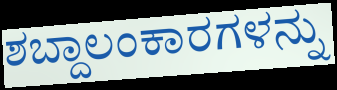
ಶಬ್ದಾಲಂಕಾರಗಳನ್ನು